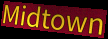
Midtown